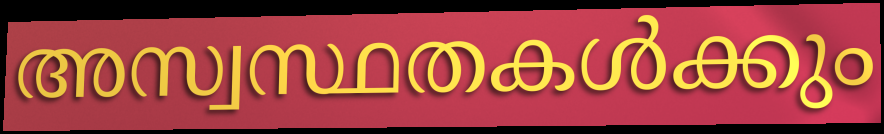
അസ്വസ്ഥതകൾക്കും